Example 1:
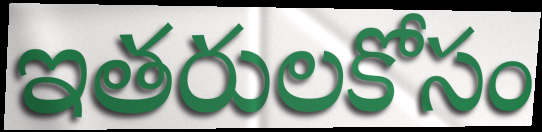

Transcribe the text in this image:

ఇతరులకోసం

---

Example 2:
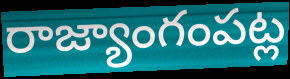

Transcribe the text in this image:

రాజ్యాంగంపట్ల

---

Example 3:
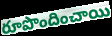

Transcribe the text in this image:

రూపొందించాయి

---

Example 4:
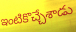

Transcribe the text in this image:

ఇంటికొచ్చేశాడు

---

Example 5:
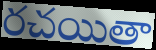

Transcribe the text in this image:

రచయితా